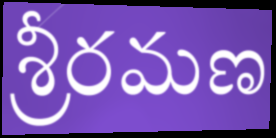
శ్రీరమణ